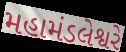
મહામંડલેશ્વરે